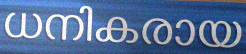
ധനികരായ